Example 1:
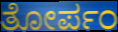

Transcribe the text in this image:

ತೋರ್ಪಂ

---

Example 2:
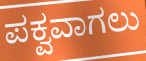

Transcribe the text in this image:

ಪಕ್ವವಾಗಲು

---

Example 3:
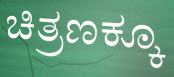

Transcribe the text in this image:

ಚಿತ್ರಣಕ್ಕೂ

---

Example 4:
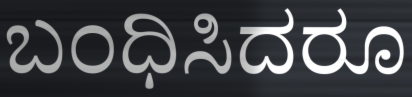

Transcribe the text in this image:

ಬಂಧಿಸಿದರೂ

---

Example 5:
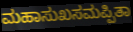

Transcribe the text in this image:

ಮಹಾಸುಖಸಮಪ್ಪಿತಾ